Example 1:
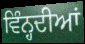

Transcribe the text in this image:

ਵਿੰਨ੍ਹਦੀਆਂ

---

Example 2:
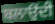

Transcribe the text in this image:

ਬਲਾਉਂਦੀ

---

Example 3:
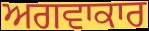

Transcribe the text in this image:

ਅਗਵਾਕਾਰ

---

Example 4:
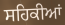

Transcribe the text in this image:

ਸਹਿਕੀਆਂ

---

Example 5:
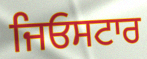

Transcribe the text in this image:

ਜਿਓਸਟਾਰ